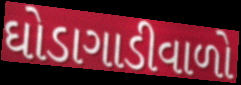
ઘોડાગાડીવાળો